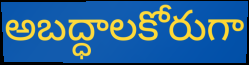
అబద్ధాలకోరుగా